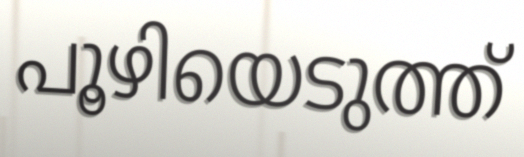
പൂഴിയെടുത്ത്